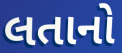
લતાનો